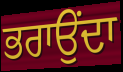
ਭਰਾਉਂਦਾ